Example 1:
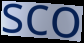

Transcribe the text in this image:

sco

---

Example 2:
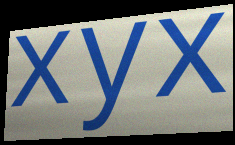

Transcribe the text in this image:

xyx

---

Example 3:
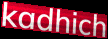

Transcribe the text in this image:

kadhich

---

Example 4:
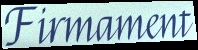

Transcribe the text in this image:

Firmament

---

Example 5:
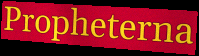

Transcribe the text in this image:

Propheterna